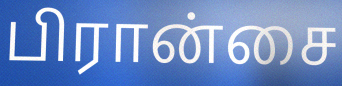
பிரான்சை